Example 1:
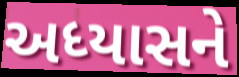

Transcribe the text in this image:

અધ્યાસને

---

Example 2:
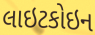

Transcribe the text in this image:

લાઇટકોઇન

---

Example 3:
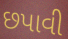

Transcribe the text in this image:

છપાવી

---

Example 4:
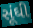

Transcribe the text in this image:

સૂંઘી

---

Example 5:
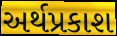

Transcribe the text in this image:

અર્થપ્રકાશ